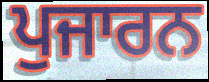
ਪੁਜਾਰਨ